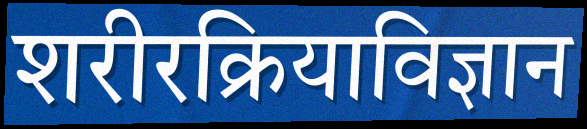
शरीरक्रियाविज्ञान